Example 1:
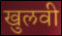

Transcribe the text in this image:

खुलवी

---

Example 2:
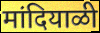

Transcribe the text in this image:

मांदियाळी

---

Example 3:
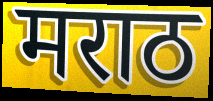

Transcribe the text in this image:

मराठ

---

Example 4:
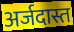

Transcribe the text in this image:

अर्जदास्त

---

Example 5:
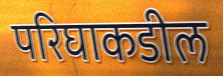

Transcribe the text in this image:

परिघाकडील